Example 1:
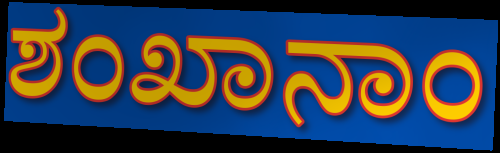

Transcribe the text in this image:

ಶಂಖಾನಾಂ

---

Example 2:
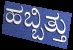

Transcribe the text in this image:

ಹಬ್ಬಿತ್ತು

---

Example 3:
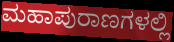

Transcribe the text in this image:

ಮಹಾಪುರಾಣಗಳಲ್ಲಿ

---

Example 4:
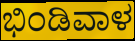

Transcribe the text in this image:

ಭಿಂಡಿವಾಳ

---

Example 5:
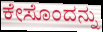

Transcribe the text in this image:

ಕೇಸೊಂದನ್ನು